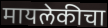
मायलेकीचा